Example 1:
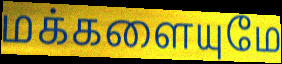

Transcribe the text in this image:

மக்களையுமே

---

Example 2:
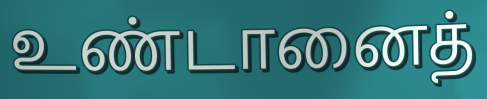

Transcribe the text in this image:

உண்டானைத்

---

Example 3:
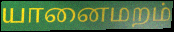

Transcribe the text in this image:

யானைமறம்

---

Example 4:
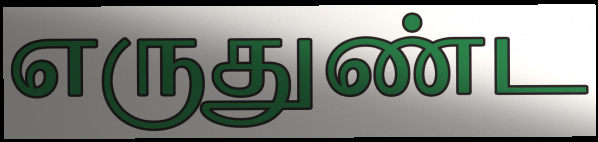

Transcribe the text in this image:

எருதுண்ட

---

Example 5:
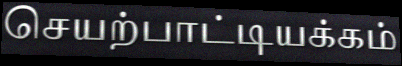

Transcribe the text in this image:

செயற்பாட்டியக்கம்